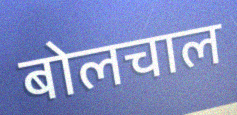
बोलचाल